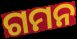
ଗମନ